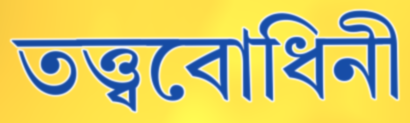
তত্ত্ববোধিনী